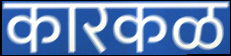
कारकळ